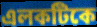
এলকটিকে